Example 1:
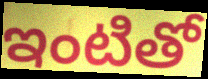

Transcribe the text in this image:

ఇంటితో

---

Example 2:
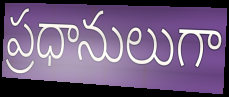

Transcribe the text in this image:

ప్రధానులుగా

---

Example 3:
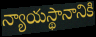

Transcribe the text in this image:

న్యాయస్థానానికి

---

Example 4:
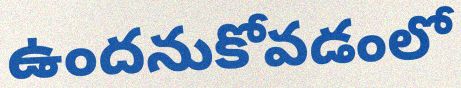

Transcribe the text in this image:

ఉందనుకోవడంలో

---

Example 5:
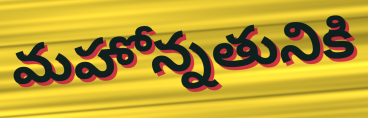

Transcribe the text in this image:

మహోన్నతునికి